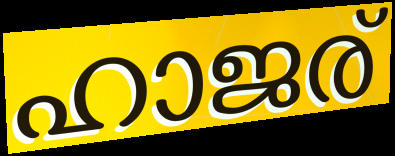
ഹാജര്